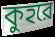
কুহরে